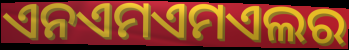
ଏନଏମଏମଏଲର